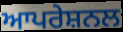
ਆਪਰੇਸ਼ਨਲ